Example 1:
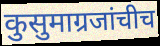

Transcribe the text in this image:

कुसुमाग्रजांचीच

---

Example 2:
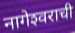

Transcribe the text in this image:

नागेश्‍वराची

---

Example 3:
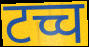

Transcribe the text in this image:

टच्च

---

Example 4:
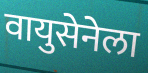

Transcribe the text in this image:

वायुसेनेला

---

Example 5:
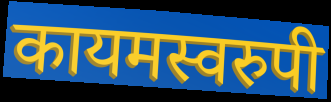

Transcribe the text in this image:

कायमस्वरुपी